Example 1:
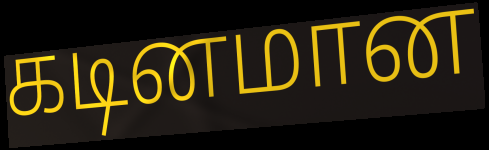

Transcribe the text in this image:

கடினமான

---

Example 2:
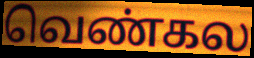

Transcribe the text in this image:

வெண்கல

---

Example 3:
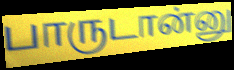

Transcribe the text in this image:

பாருடான்னு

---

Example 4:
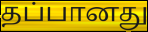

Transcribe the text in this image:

தப்பானது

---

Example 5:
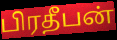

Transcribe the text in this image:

பிரதீபன்